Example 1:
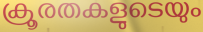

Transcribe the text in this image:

ക്രൂരതകളുടെയും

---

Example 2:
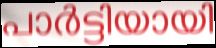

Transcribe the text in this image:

പാർട്ടിയായി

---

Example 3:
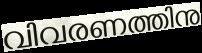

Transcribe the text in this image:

വിവരണത്തിനു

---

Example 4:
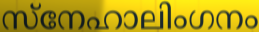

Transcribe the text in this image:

സ്നേഹാലിംഗനം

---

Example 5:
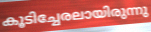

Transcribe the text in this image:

കൂടിച്ചേരലായിരുന്നു